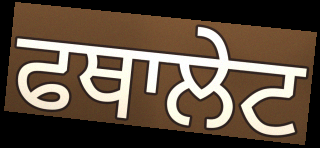
ਫਥਾਲੇਟ